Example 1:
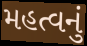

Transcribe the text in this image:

મહત્વનું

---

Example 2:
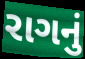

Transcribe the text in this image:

રાગનું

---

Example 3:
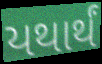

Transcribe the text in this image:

યથાર્થં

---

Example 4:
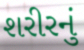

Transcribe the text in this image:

શરીરનું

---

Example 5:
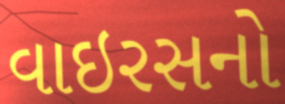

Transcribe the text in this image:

વાઇરસનો